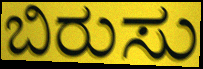
ಬಿರುಸು